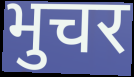
भुचर